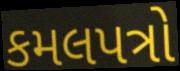
કમલપત્રો